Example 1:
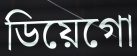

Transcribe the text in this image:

ডিয়েগো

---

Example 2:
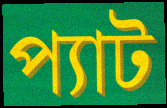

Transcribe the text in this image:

প্যাট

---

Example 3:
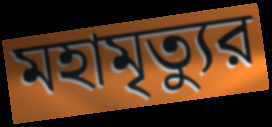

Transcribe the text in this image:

মহামৃত্যুর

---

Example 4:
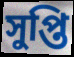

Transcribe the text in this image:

সুপ্তি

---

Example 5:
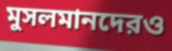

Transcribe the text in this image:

মুসলমানদেরও